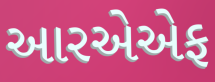
આરએએફ